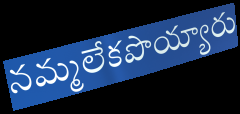
నమ్మలేకపొయ్యారు